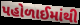
પહોળાઈમાંથી